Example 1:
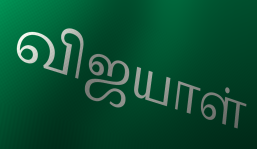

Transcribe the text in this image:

விஜயாள்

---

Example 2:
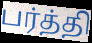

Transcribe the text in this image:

பர்த்தி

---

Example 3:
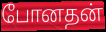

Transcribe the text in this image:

போனதன்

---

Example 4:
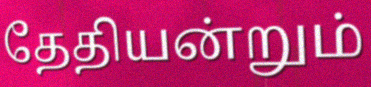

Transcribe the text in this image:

தேதியன்றும்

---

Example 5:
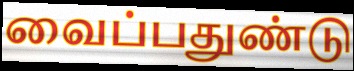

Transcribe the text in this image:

வைப்பதுண்டு